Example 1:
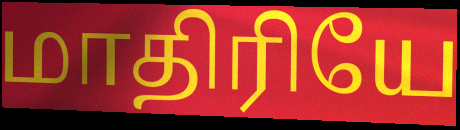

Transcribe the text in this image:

மாதிரியே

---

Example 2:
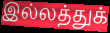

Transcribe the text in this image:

இல்லத்துக்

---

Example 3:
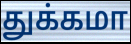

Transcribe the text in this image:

துக்கமா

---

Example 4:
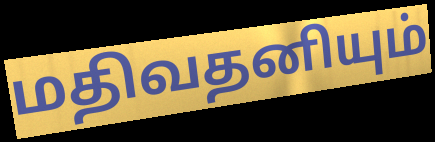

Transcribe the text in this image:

மதிவதனியும்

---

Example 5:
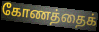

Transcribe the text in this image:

கோணத்தைக்